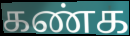
கண்க